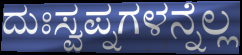
ದುಃಸ್ವಪ್ನಗಳನ್ನೆಲ್ಲ